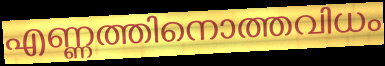
എണ്ണത്തിനൊത്തവിധം